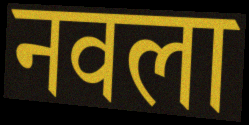
नवला